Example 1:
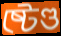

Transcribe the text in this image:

ষ্টেণ্ড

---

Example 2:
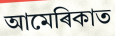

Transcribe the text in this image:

আমেৰিকাত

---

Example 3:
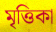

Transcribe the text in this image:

মৃত্তিকা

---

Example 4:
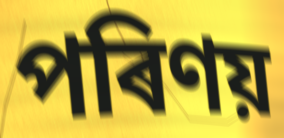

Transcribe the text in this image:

পৰিণয়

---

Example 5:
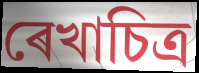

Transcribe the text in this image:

ৰেখাচিত্ৰ